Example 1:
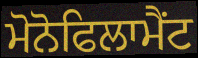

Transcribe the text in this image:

ਮੋਨੋਫਿਲਾਮੈਂਟ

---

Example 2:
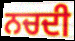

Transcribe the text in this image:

ਨਚਦੀ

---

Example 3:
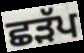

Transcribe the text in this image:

ਛੜੱਪ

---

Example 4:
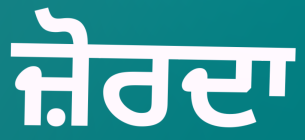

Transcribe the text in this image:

ਜ਼ੋਰਦਾ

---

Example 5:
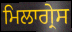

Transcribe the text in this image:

ਮਿਲਾਗ੍ਰੇਸ